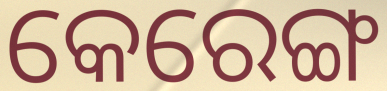
କେରେଙ୍ଗ